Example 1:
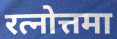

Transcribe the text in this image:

रत्नोत्तमा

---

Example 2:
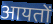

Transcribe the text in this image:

आयतों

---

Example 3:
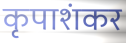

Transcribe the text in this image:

कृपाशंकर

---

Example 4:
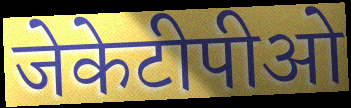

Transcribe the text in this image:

जेकेटीपीओ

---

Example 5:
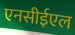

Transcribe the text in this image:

एनसीईएल